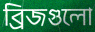
ব্রিজগুলো